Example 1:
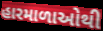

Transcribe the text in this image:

હારમાળાઓથી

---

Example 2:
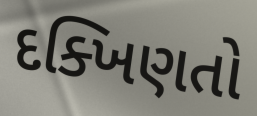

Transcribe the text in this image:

દક્ખિણતો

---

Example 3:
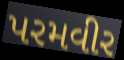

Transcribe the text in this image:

પરમવીર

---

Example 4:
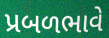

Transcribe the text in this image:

પ્રબળભાવે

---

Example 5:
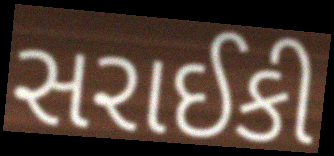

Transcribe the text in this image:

સરાઈકી